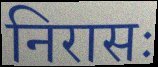
निरासः